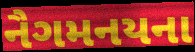
નૈગમનયના